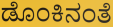
ಡೊಂಕಿನಂತೆ